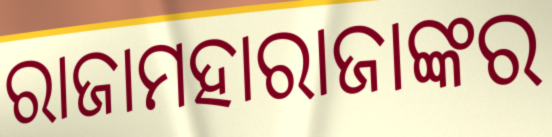
ରାଜାମହାରାଜାଙ୍କର